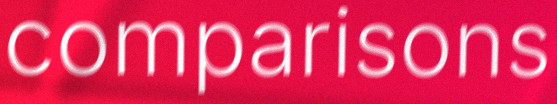
comparisons